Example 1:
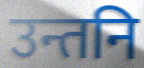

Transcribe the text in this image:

उन्तनि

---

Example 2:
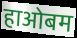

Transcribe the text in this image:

हाओबम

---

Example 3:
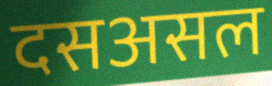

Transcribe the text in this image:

दसअसल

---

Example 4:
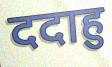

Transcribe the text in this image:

ददाहु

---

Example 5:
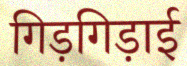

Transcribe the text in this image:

गिड़गिड़ाई